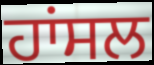
ਹਾਂਸਲ